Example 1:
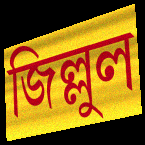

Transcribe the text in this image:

জিল্লুল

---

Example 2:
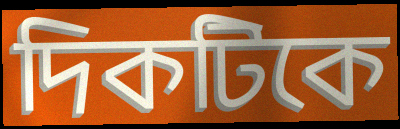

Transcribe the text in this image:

দিকটিকে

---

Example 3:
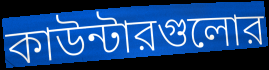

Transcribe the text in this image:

কাউন্টারগুলোর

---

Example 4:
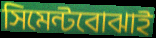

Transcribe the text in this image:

সিমেন্টবোঝাই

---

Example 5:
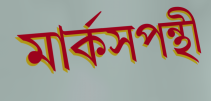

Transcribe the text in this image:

মার্কসপন্থী